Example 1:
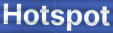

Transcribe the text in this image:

Hotspot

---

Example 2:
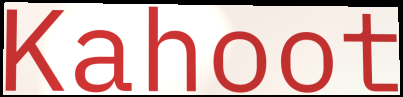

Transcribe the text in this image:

Kahoot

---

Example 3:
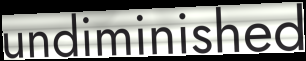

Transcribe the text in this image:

undiminished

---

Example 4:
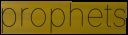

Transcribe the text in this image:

prophets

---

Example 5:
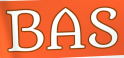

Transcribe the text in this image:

BAS